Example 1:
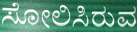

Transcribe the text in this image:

ಸೋಲಿಸಿರುವ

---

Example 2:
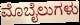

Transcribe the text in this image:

ಮೊಬೈಲುಗಳು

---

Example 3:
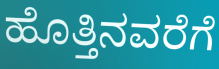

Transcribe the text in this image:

ಹೊತ್ತಿನವರೆಗೆ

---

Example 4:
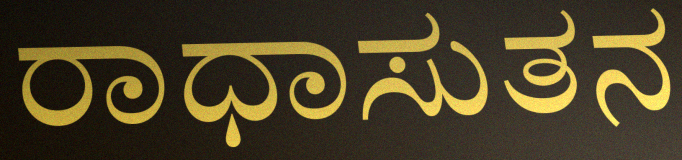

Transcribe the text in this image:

ರಾಧಾಸುತನ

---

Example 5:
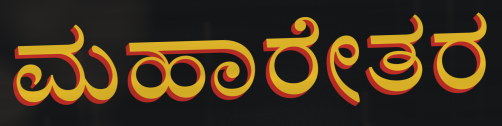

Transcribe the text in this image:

ಮಹಾರೇತರ